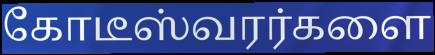
கோடீஸ்வரர்களை